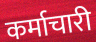
कर्माचारी